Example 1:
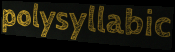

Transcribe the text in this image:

polysyllabic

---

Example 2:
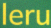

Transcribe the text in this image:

leru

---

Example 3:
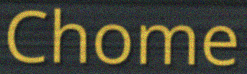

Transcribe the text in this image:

Chome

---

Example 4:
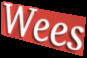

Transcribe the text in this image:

Wees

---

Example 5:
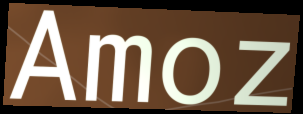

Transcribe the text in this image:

Amoz